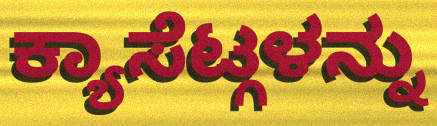
ಕ್ಯಾಸೆಟ್ಗಳನ್ನು